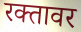
रक्तावर